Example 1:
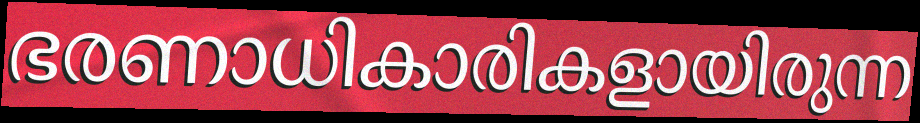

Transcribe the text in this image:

ഭരണാധികാരികളായിരുന്ന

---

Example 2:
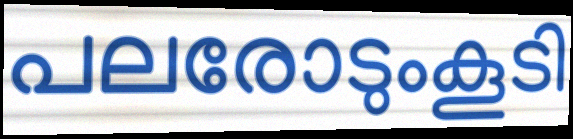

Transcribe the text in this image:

പലരോടുംകൂടി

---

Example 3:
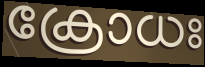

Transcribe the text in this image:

ക്രോധഃ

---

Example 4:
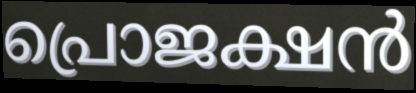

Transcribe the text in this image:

പ്രൊജക്ഷൻ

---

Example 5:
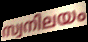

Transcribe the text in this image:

സ്വനിലയം